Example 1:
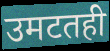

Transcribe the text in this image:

उमटतही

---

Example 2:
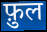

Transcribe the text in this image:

फ़ुल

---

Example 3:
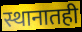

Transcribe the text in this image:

स्थानातही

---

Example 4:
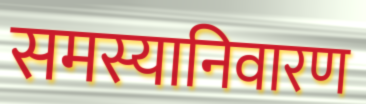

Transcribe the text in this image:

समस्यानिवारण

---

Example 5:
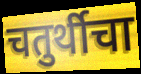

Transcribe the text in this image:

चतुर्थीचा